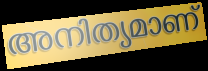
അനിത്യമാണ്